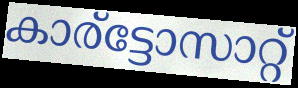
കാര്ട്ടോസാറ്റ്